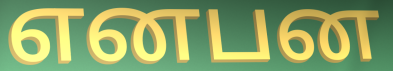
எனபன